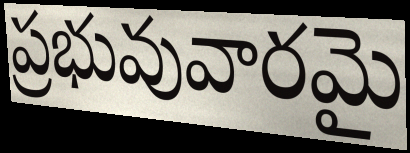
ప్రభువువారమై